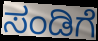
ಸಂಡಿಗೆ